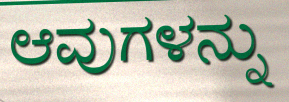
ಆವುಗಳನ್ನು